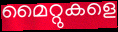
മൈറ്റുകളെ